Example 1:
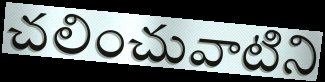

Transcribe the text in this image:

చలించువాటిని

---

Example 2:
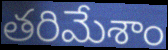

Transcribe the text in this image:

తరిమేశాం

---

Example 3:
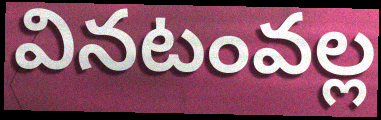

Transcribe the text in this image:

వినటంవల్ల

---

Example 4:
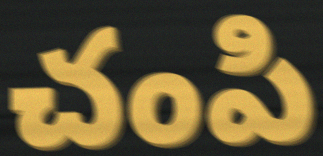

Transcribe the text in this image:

చంపి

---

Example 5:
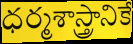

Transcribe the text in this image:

ధర్మశాస్త్రానికే